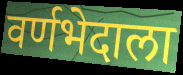
वर्णभेदाला